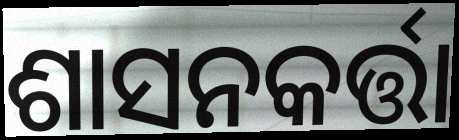
ଶାସନକର୍ତ୍ତା